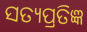
ସତ୍ୟପ୍ରତିଜ୍ଞ